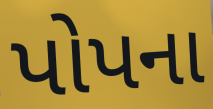
પોપના